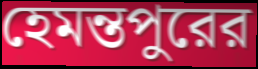
হেমন্তপুরের